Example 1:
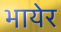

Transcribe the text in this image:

भायेर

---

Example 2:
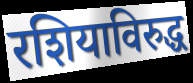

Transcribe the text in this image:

रशियाविरुद्ध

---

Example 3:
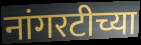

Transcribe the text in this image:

नांगरटीच्या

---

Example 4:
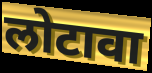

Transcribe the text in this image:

लोटावा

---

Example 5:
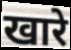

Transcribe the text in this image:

खारे